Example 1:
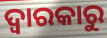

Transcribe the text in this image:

ଦ୍ଵାରକାରୁ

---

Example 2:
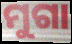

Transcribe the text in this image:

ମୁଗା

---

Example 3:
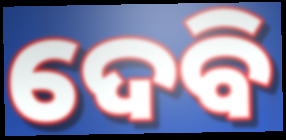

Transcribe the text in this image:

ଦେବି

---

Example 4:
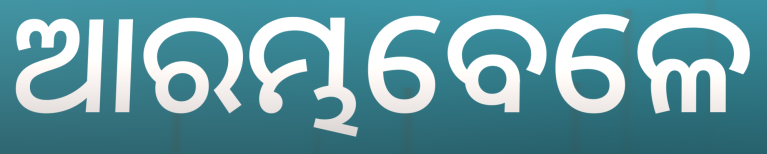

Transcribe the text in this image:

ଆରମ୍ଭବେଳେ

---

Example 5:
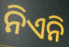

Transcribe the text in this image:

ନିଏନି